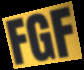
FGF